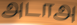
அடாஅ